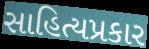
સાહિત્યપ્રકાર